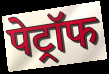
पेट्रॉफ